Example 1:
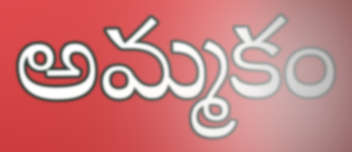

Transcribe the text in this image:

అమ్మకం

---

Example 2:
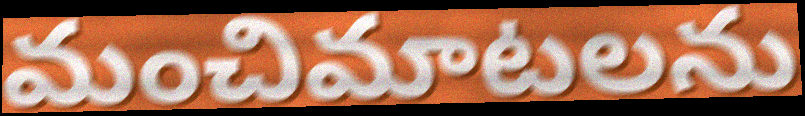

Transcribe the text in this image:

మంచిమాటలను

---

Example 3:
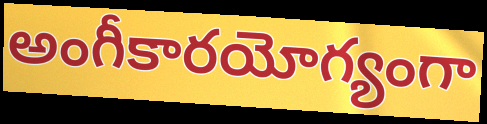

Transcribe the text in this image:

అంగీకారయోగ్యంగా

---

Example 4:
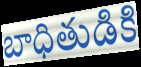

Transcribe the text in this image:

బాధితుడికి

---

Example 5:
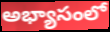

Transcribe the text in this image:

అభ్యాసంలో